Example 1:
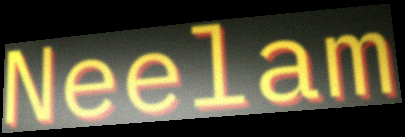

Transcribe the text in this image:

Neelam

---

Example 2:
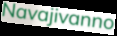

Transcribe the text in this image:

Navajivanno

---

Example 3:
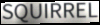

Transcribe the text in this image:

SQUIRREL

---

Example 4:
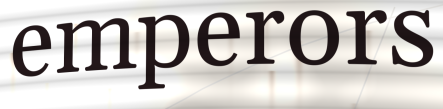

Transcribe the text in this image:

emperors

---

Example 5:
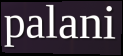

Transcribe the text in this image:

palani